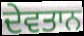
ਦੇਵਤਾਨ